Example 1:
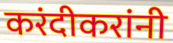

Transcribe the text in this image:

करंदीकरांनी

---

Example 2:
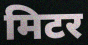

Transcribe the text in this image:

मिटर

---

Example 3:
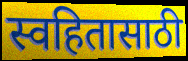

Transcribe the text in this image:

स्वहितासाठी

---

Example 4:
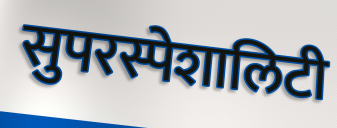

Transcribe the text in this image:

सुपरस्पेशालिटी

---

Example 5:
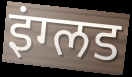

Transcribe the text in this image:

इंग्लड